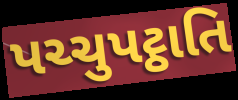
પચ્ચુપટ્ઠાતિ